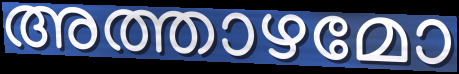
അത്താഴമോ